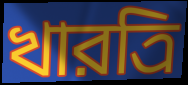
খারত্রি